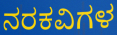
ನರಕವಿಗಳ